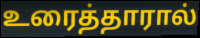
உரைத்தாரால்